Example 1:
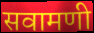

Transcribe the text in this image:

सवामणी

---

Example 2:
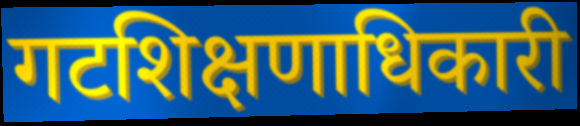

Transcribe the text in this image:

गटशिक्षणाधिकारी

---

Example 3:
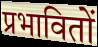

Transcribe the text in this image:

प्रभावितों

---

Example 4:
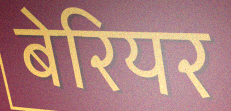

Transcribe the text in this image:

बेरियर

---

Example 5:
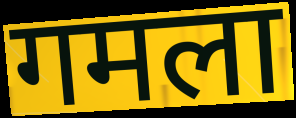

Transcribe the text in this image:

गमला